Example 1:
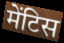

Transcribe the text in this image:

मेंटिस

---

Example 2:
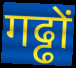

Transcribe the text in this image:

गढ्ढों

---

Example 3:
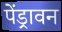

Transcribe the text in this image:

पेंड्रावन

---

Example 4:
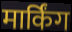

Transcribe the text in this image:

मार्किंग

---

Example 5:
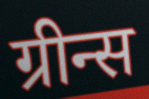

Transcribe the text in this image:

ग्रीन्स